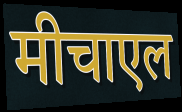
मीचाएल